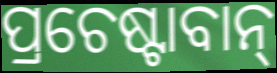
ପ୍ରଚେଷ୍ଟାବାନ୍